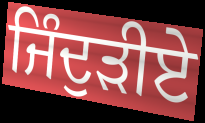
ਜਿੰਦੁੜੀਏ